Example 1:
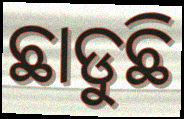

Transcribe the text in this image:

ଛାଡୁଛି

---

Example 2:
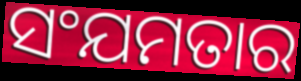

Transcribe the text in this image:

ସଂଯମତାର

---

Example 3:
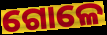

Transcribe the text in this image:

ଗୋଳେ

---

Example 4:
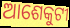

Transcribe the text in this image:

ଆଶେକୁଟୀ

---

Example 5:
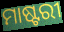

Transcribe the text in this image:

ମାଷ୍ଟରୀ